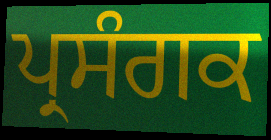
ਪ੍ਰਸੰਗਕ